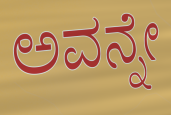
ಅವನ್ನೇ